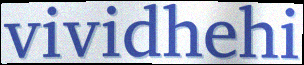
vividhehi